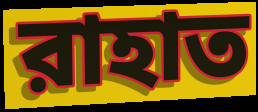
রাহাত